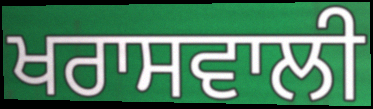
ਖਰਾਸਵਾਲੀ